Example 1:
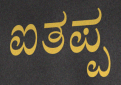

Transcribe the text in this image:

ಐತಪ್ಪ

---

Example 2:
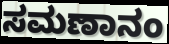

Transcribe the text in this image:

ಸಮಣಾನಂ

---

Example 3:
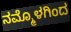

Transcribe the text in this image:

ನಮ್ಮೊಳಗಿಂದ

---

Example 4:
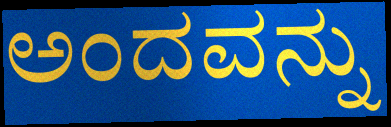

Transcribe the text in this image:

ಅಂದವನ್ನು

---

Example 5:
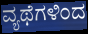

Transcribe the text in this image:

ವ್ಯಥೆಗಳಿಂದ